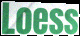
Loess